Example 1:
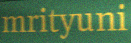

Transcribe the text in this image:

mrityuni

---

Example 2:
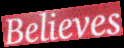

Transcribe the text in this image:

Believes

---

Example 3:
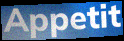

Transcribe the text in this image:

Appetit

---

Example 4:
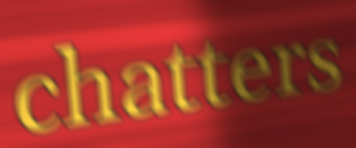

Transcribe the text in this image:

chatters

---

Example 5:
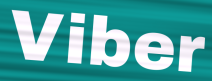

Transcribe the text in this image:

Viber